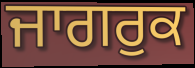
ਜਾਗਰੁਕ